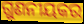
ଗୁଣନୀୟକର